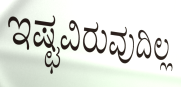
ಇಷ್ಟವಿರುವುದಿಲ್ಲ